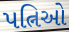
પત્નિઓ